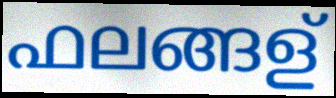
ഫലങ്ങള്